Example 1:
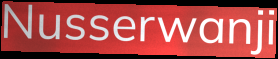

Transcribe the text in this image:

Nusserwanji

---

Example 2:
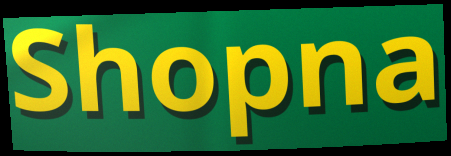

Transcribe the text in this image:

Shopna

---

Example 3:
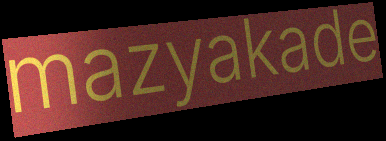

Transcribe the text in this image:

mazyakade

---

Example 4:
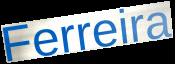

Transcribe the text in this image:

Ferreira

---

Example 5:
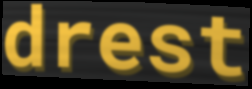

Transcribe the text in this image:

drest